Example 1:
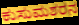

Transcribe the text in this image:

ಕುಸುಮಶರನ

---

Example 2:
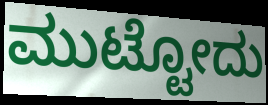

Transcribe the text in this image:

ಮುಟ್ಟೋದು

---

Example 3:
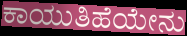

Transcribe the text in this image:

ಕಾಯುತಿಹೆಯೇನು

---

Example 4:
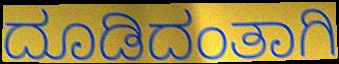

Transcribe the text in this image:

ದೂಡಿದಂತಾಗಿ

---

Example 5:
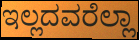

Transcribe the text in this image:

ಇಲ್ಲದವರೆಲ್ಲಾ